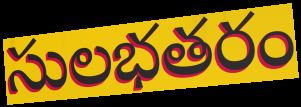
సులభతరం